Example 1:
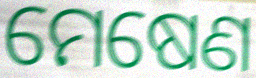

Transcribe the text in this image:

ମେଷେଣ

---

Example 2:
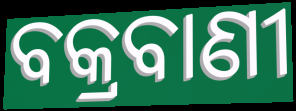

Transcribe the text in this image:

ବକ୍ରବାଣୀ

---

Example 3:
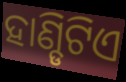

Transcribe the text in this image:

ହାଣ୍ଡିଟିଏ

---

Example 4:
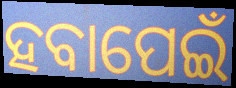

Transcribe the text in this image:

ହବାପେଇଁ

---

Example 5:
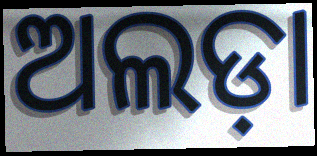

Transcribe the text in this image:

ଅଲଡ଼ା